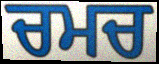
ਚਮਚ